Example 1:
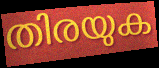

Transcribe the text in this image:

തിരയുക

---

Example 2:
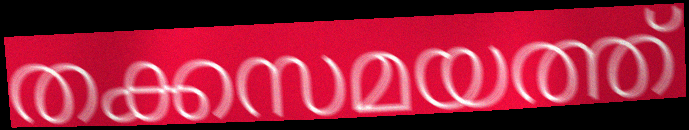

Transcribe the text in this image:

തക്കസമയത്ത്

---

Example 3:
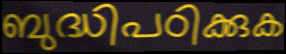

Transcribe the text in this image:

ബുദ്ധിപഠിക്കുക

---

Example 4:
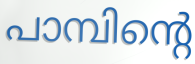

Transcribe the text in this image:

പാമ്പിന്റെ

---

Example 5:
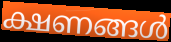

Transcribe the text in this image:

ക്ഷണങ്ങൾ